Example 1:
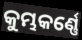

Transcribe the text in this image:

କୁମ୍ଭକର୍ଣ୍ଣେ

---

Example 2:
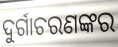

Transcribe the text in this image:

ଦୁର୍ଗାଚରଣଙ୍କର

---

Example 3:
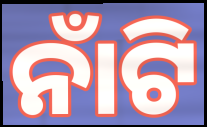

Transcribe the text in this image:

ନାଁଟି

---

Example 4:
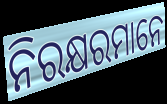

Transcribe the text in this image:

ନିରକ୍ଷରମାନେ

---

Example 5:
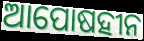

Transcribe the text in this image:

ଆପୋଷହୀନ